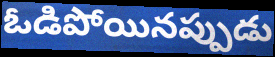
ఓడిపోయినప్పుడు